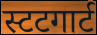
स्टटगार्ट